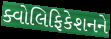
ક્વોલિફિકેશનને